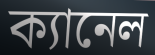
ক্যানেল